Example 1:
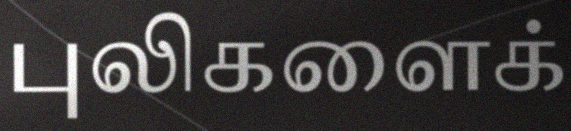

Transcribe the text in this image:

புலிகளைக்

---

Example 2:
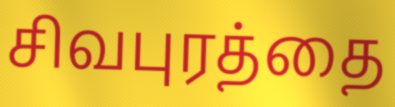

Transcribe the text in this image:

சிவபுரத்தை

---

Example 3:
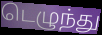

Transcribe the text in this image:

டெழுந்து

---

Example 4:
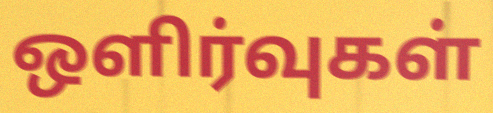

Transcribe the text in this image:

ஒளிர்வுகள்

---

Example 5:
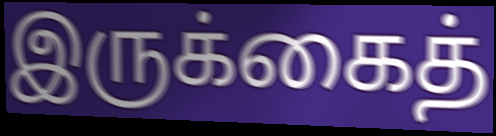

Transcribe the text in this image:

இருக்கைத்